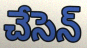
చేసెన్